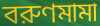
বরুণমামা